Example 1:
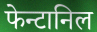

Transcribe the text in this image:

फेन्टानिल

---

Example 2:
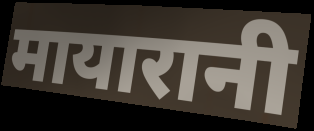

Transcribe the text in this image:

मायारानी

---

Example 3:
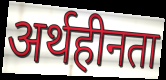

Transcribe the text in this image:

अर्थहीनता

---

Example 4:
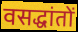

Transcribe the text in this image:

वसद्धांतों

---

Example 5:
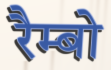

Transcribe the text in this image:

रैम्बो